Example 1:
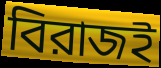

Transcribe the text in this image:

বিরাজই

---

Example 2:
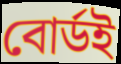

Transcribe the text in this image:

বোর্ডই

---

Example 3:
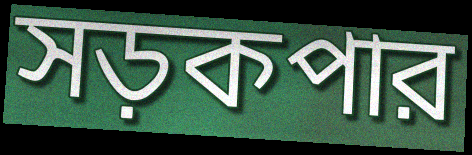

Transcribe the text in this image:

সড়কপার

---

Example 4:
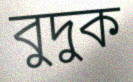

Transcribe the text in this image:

বুদুক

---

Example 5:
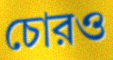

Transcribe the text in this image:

চোরও